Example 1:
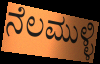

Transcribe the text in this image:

ನೆಲಮುಳ್ಳಿ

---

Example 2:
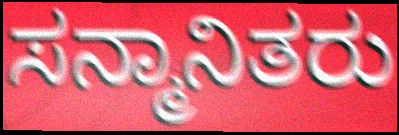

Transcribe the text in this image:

ಸನ್ಮಾನಿತರು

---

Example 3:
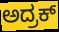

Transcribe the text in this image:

ಅದ್ರಕ್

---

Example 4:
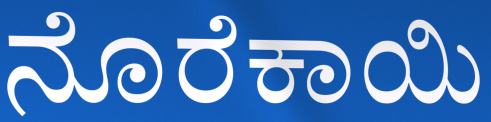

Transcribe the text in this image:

ನೊರೆಕಾಯಿ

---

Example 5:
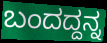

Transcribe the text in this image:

ಬಂದದ್ದನ್ನ